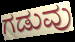
ಗಡುವು